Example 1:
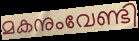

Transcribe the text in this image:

മകനുംവേണ്ടി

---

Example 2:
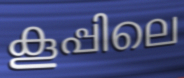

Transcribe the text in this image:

കൂപ്പിലെ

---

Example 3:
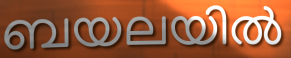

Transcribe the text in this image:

ബയലയിൽ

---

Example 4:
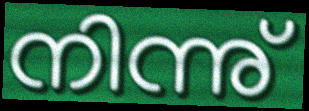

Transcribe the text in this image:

നിന്നു്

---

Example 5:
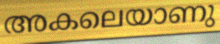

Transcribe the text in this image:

അകലെയാണു